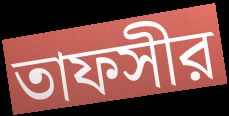
তাফসীর